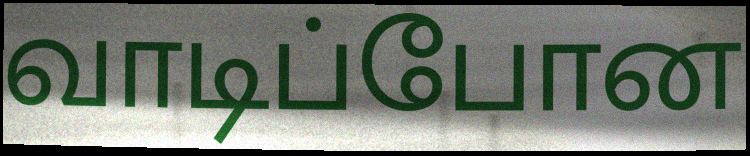
வாடிப்போன